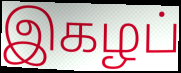
இகழப்